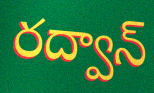
రద్వాన్